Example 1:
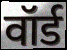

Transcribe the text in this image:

वॉर्ड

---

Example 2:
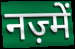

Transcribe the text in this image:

नज़्में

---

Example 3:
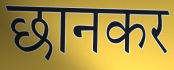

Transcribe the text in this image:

छानकर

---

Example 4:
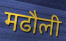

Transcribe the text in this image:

मढौली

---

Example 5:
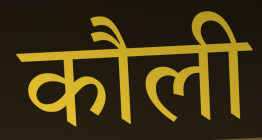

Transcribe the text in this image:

कौली